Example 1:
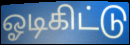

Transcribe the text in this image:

ஓடிகிட்டு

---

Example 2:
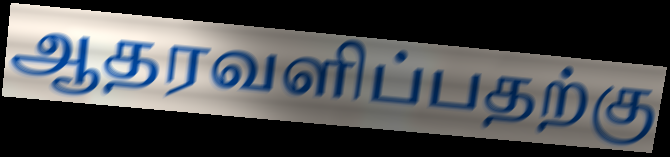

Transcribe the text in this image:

ஆதரவளிப்பதற்கு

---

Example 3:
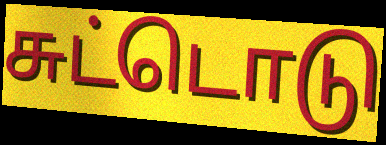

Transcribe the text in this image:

சுட்டொடு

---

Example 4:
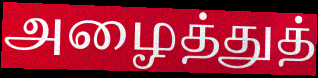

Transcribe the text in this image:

அழைத்துத்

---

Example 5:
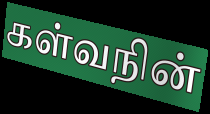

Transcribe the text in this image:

கள்வநின்